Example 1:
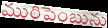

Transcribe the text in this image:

మురిపెంబును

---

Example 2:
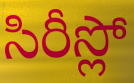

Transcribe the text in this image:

సిరీస్లో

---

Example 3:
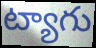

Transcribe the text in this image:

ట్యాగు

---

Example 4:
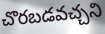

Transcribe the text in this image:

చొరబడవచ్చని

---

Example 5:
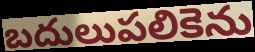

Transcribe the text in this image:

బదులుపలికెను